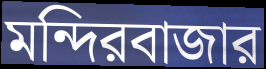
মন্দিরবাজার